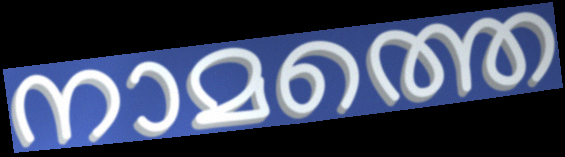
നാമത്തെ